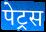
पेट्रस